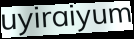
uyiraiyum